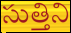
సుత్తిని